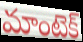
మాంటెక్